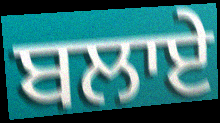
ਬਲਾਏ